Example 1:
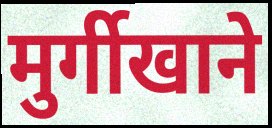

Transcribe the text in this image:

मुर्गीखाने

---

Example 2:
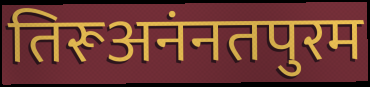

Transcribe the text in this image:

तिरूअनंनतपुरम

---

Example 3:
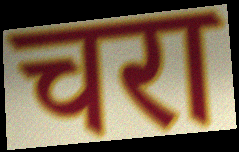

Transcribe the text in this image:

चरा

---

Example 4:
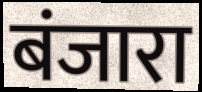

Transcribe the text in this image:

बंजारा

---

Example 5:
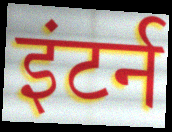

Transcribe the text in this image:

इंटर्न